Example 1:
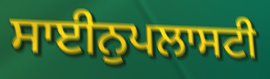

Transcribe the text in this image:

ਸਾਈਨੁਪਲਾਸਟੀ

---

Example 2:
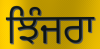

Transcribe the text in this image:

ਝਿੰਜਰਾ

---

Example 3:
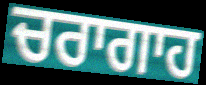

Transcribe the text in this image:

ਚਰਾਗਾਹ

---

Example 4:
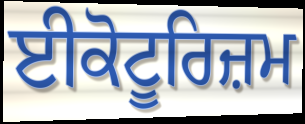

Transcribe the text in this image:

ਈਕੋਟੂਰਿਜ਼ਮ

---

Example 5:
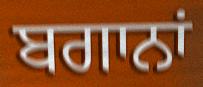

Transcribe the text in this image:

ਬਗਾਨਾਂ